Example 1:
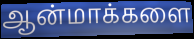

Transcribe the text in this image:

ஆன்மாக்களை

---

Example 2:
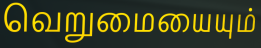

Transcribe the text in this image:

வெறுமையையும்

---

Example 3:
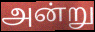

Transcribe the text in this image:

அன்று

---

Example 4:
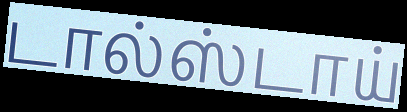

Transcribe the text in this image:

டால்ஸ்டாய்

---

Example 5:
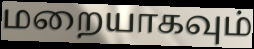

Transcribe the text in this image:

மறையாகவும்